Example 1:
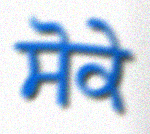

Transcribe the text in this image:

ਸੋਕੇ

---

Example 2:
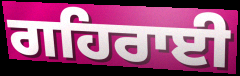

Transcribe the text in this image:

ਗਹਿਰਾਈ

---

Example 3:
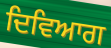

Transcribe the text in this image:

ਦਿਵਿਆਗ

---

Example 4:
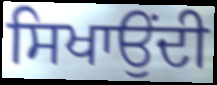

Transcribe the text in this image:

ਸਿਖਾਉਂਦੀ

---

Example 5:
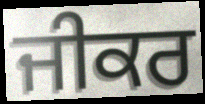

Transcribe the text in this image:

ਜੀਕਰ